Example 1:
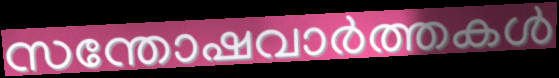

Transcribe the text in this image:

സന്തോഷവാർത്തകൾ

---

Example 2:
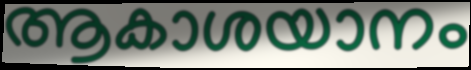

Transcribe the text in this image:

ആകാശയാനം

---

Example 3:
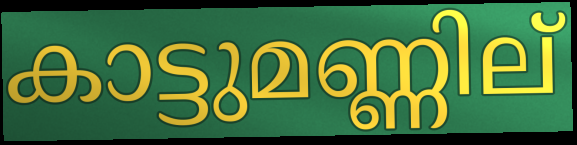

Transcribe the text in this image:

കാട്ടുമണ്ണില്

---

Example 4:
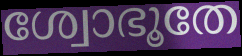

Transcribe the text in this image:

ശ്വോഭൂതേ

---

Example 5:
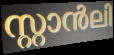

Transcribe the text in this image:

സ്റ്റാൻലി